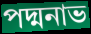
পদ্মনাভ